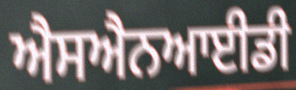
ਐਸਐਨਆਈਡੀ